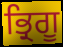
ਭ੍ਰਿਗੂ